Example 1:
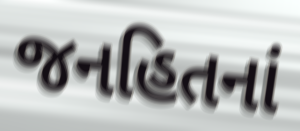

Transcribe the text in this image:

જનહિતનાં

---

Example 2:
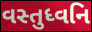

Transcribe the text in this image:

વસ્તુધ્વનિ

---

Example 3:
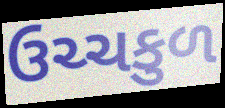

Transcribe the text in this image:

ઉચ્ચકુળ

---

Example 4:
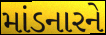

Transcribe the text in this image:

માંડનારને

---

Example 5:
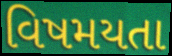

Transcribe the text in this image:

વિષમયતા